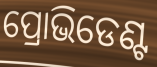
ପ୍ରୋଭିଡେଣ୍ଟ